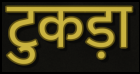
टुकड़ा